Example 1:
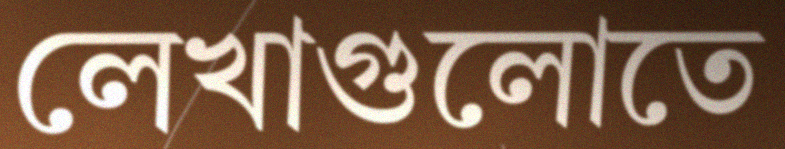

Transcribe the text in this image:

লেখাগুলোতে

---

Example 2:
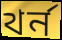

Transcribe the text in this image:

থর্ন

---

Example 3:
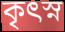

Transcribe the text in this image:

কৃৎস্ন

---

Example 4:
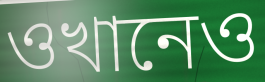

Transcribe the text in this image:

ওখানেও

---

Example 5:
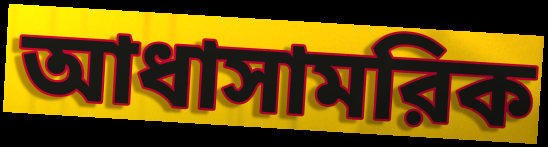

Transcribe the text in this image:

আধাসামরিক